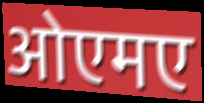
ओएमए